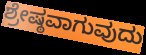
ಶ್ರೇಷ್ಠವಾಗುವುದು